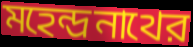
মহেন্দ্রনাথের